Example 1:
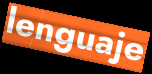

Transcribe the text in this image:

lenguaje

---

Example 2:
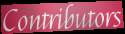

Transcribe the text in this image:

Contributors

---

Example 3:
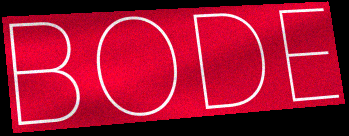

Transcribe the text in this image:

BODE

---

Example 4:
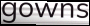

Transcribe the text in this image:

gowns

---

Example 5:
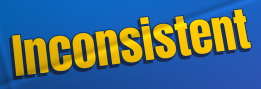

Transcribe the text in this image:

Inconsistent